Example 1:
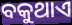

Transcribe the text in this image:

ବକୁଥାଏ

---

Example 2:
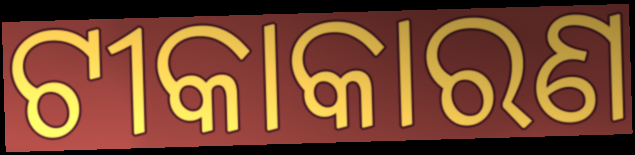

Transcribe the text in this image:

ଟୀକାକାରଣ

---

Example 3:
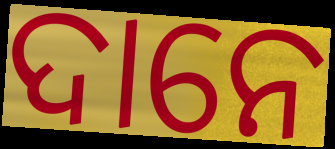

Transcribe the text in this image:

ଦାନେ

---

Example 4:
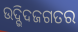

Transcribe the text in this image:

ଉଦ୍ଭିଦଜଗତର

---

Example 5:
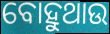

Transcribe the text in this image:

ବୋହୁଥାଉ